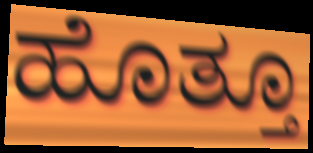
ಹೊತ್ತೂ